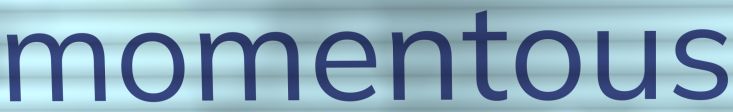
momentous